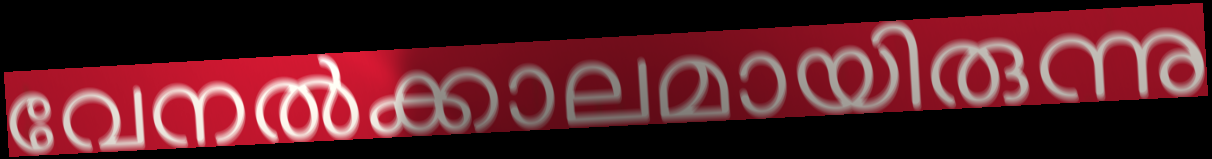
വേനൽക്കാലമായിരുന്നു